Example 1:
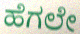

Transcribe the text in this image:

ಹೆಗಲೇ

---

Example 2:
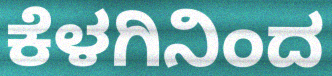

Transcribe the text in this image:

ಕೆಳಗಿನಿಂದ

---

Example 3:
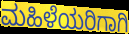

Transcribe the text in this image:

ಮಹಿಳೆಯರಿಗಾಗಿ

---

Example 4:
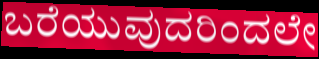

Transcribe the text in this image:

ಬರೆಯುವುದರಿಂದಲೇ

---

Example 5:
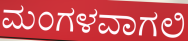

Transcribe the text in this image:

ಮಂಗಳವಾಗಲಿ